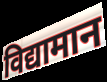
विद्यामान